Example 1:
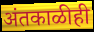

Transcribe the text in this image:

अंतकाळीही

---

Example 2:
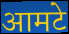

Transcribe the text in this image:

आमटे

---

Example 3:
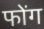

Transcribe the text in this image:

फोंग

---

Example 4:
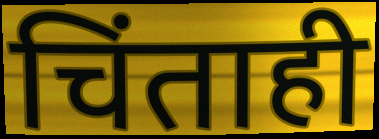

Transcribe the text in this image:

चिंताही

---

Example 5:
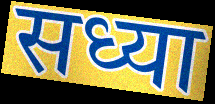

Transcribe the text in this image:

सध्या